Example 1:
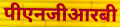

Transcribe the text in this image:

पीएनजीआरबी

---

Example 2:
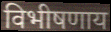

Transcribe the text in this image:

विभीषणाय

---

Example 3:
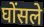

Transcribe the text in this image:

घोंसले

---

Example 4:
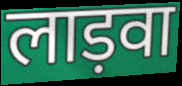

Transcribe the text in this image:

लाड़वा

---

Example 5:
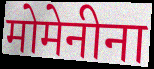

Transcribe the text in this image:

मोमेनीना